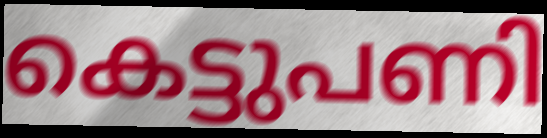
കെട്ടുപണി